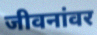
जीवनांवर